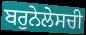
ਬਰੁਨੇਲੇਸਚੀ